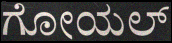
ಗೋಯಲ್